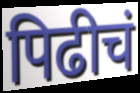
पिढीचं